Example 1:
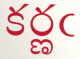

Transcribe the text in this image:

కర్ణఁ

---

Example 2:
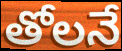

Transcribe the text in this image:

తోలనే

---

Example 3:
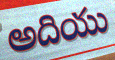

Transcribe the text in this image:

అదియు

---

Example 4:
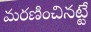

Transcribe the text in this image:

మరణించినట్టే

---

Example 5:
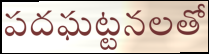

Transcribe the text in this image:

పదఘట్టనలతో